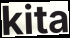
kita